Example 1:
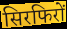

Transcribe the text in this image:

सिरफिरों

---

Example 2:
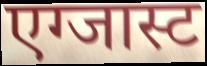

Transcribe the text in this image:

एग्जास्ट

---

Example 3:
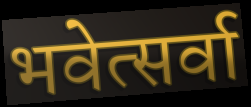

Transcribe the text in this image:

भवेत्सर्वा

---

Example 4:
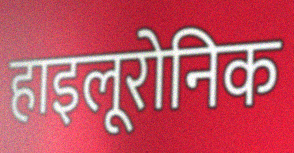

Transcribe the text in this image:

हाइलूरोनिक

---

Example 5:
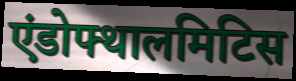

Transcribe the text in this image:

एंडोफ्थालमिटिस